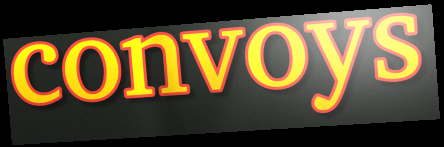
convoys